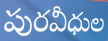
పురవీధుల